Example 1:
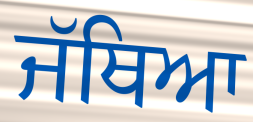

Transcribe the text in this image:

ਜੱਥਿਆ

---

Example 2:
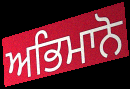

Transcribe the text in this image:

ਅਭਿਮਾਨੋ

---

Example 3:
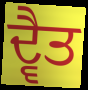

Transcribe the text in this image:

ਦ੍ਵੈਤ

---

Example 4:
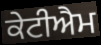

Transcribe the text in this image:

ਕੇਟੀਐਮ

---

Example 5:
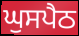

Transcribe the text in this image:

ਘੁਸਪੈਠ